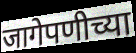
जागेपणीच्या